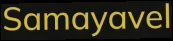
Samayavel